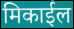
मिकाईल